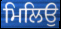
ਮਿਲਿਉ